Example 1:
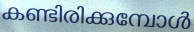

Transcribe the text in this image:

കണ്ടിരിക്കുമ്പോൾ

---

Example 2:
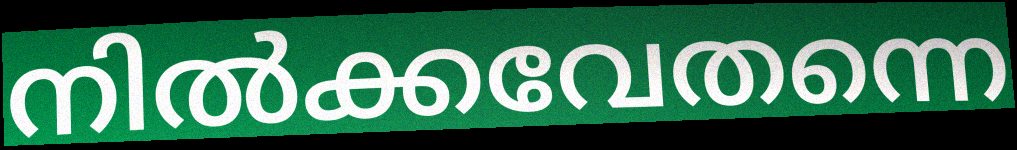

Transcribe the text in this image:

നിൽക്കവേതന്നെ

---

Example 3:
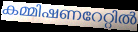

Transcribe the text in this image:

കമ്മിഷണറേറ്റിൽ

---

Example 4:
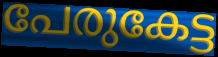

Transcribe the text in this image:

പേരുകേട്ട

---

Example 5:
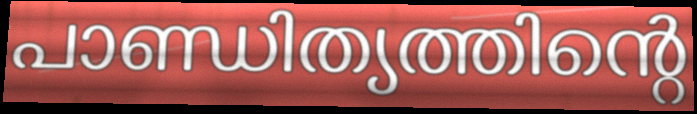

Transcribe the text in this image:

പാണ്ഡിത്യത്തിന്റെ